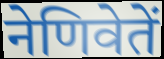
नेणिवेतें